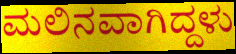
ಮಲಿನವಾಗಿದ್ದಳು